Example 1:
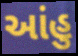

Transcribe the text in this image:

આંહુ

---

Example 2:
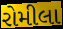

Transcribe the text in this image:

રોમીલા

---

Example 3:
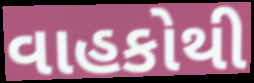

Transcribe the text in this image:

વાહકોથી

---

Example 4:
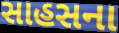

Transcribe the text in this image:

સાહસના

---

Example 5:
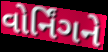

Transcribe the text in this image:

વોર્નિંગને